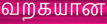
வறகயான